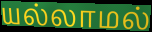
யல்லாமல்